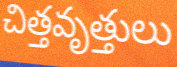
చిత్తవృత్తులు